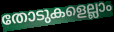
തോടുകളെല്ലാം